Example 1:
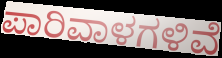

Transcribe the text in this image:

ಪಾರಿವಾಳಗಳಿವೆ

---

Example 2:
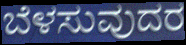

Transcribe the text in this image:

ಬೆಳಸುವುದರ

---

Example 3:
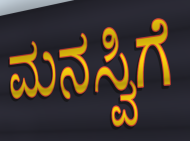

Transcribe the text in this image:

ಮನಸ್ವಿಗೆ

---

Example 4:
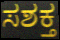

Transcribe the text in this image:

ಸಶಕ್ತ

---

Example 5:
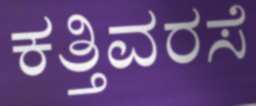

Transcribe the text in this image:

ಕತ್ತಿವರಸೆ